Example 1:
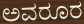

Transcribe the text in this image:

ಅವರೂರ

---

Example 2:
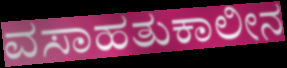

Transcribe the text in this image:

ವಸಾಹತುಕಾಲೀನ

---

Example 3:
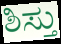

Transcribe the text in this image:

ಶಿಸ್ತು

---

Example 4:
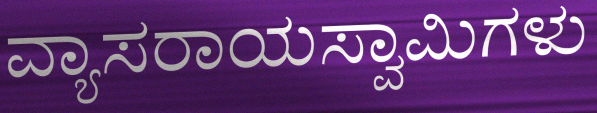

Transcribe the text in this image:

ವ್ಯಾಸರಾಯಸ್ವಾಮಿಗಳು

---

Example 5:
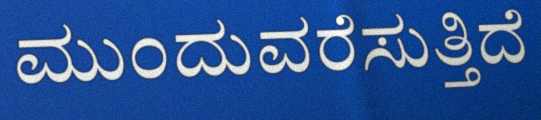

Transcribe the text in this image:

ಮುಂದುವರೆಸುತ್ತಿದೆ